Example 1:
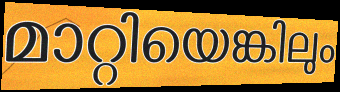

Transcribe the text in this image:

മാറ്റിയെങ്കിലും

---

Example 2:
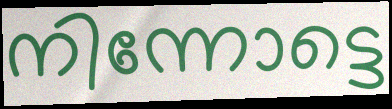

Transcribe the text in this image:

നിന്നോട്ടെ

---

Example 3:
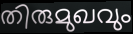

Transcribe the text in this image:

തിരുമുഖവും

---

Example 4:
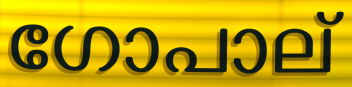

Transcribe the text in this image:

ഗോപാല്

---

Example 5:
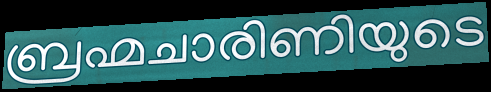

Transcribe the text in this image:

ബ്രഹ്മചാരിണിയുടെ